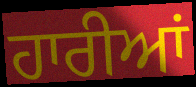
ਹਾਰੀਆਂ